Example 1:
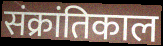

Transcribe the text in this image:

संक्रांतिकाल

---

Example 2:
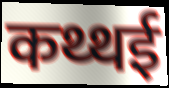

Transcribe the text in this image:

कथ्थई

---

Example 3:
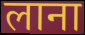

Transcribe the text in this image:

लाना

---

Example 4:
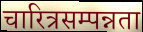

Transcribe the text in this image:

चारित्रसम्पन्नता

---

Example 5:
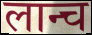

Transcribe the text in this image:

लान्‍च